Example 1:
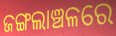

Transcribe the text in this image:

ଜଙ୍ଗଲାଞ୍ଚଳରେ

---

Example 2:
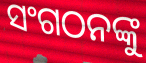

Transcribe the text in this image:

ସଂଗଠନଙ୍କୁ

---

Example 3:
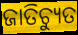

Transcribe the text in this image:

ଜାତିଚ୍ୟୁତ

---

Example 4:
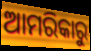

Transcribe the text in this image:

ଆମରିକାରୁ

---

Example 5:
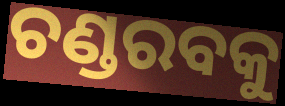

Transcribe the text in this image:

ଚଣ୍ଡରବକୁ